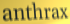
anthrax